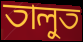
তালুত